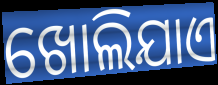
ଖୋଲିଯାଏ